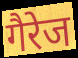
गैरेज